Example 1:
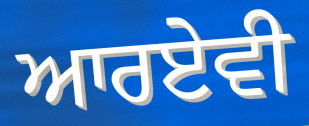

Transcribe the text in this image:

ਆਰਏਵੀ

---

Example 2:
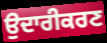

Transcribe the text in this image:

ਉਦਾਰੀਕਰਣ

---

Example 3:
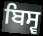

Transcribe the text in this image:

ਬਿਸ੍ਵ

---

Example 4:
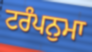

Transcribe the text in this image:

ਟਰੰਪਨੁਮਾ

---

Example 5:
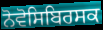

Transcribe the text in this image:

ਨੋਵੋਸਿਬਿਰਸਕ